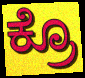
ಕ್ರೊ